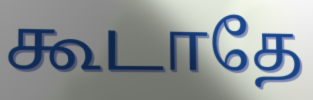
கூடாதே